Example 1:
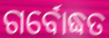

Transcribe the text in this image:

ଗର୍ବୋଦ୍ଧତ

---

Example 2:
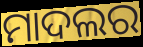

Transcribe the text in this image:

ମାଦଲର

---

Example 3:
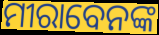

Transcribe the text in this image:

ମୀରାବେନଙ୍କ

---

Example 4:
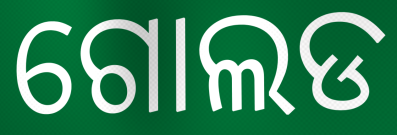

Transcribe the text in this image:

ଗୋଲଡ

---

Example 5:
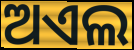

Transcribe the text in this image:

ଅଏଲ